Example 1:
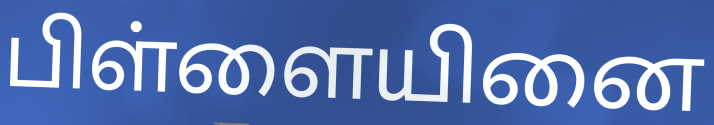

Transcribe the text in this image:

பிள்ளையினை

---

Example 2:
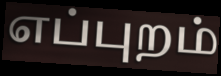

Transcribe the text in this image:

எப்புறம்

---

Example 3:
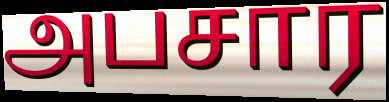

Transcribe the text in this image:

அபசார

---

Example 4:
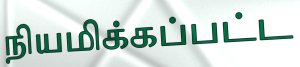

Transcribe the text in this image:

நியமிக்கப்பட்ட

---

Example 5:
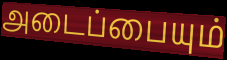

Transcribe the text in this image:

அடைப்பையும்